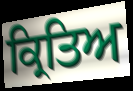
ਕ੍ਰਿਤਿਅ